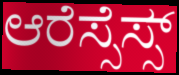
ಆರೆಸ್ಸೆಸ್ಸ್